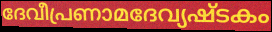
ദേവീപ്രണാമദേവ്യഷ്ടകം